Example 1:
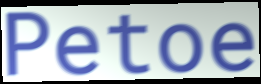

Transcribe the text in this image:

Petoe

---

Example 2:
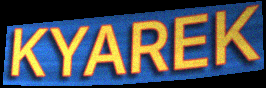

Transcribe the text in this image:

KYAREK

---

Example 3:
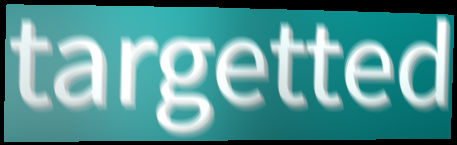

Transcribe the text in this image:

targetted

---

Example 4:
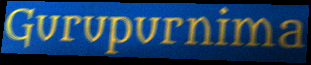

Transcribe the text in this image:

Gurupurnima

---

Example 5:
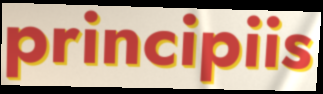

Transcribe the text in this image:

principiis